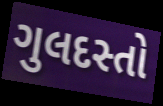
ગુલદસ્તો